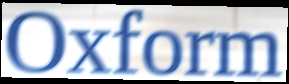
Oxform